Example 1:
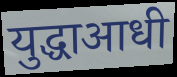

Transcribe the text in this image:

युद्धाआधी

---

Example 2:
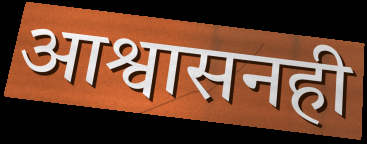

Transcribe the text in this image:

आश्वासनही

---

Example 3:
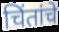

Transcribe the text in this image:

चिंतांचे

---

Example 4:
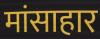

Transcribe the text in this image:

मांसाहार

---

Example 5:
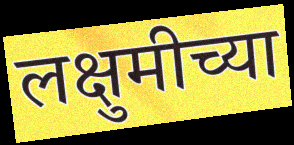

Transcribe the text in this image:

लक्षुमीच्या